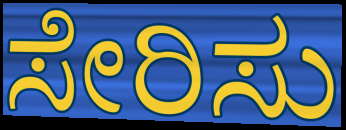
ಸೇರಿಸು